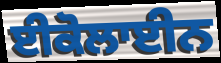
ਈਕੋਲਾਈਨ